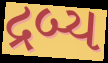
દ્રબ્ય